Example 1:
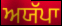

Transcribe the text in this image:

ਅਯੱਪਾ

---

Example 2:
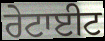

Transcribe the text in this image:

ਰੇਟਾਈਟ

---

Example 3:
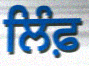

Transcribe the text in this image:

ਲਿੰਫ਼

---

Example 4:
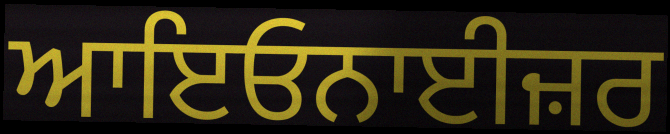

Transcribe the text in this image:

ਆਇਓਨਾਈਜ਼ਰ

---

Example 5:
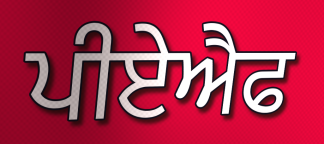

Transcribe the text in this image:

ਪੀਏਐਫ